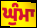
ਘੁੰਮਾ